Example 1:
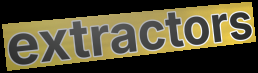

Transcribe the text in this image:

extractors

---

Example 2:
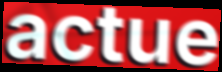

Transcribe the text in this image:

actue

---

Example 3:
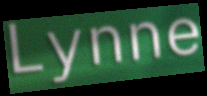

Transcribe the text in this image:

Lynne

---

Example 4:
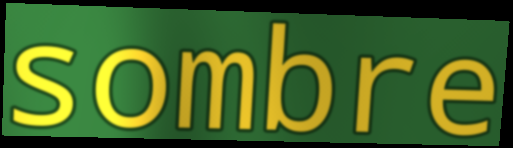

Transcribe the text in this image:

sombre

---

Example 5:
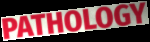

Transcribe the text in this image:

PATHOLOGY